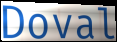
Doval